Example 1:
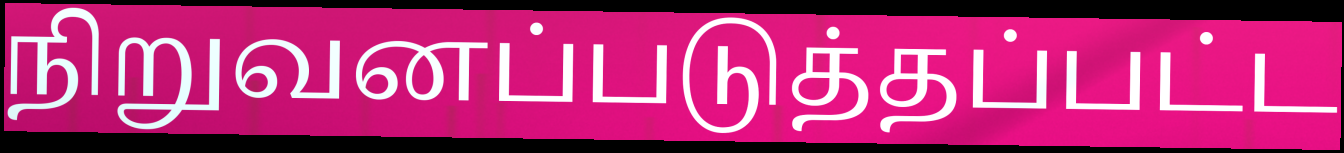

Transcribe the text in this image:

நிறுவனப்படுத்தப்பட்ட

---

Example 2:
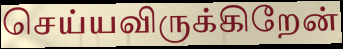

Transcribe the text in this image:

செய்யவிருக்கிறேன்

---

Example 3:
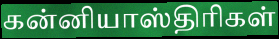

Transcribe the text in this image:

கன்னியாஸ்திரிகள்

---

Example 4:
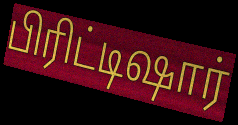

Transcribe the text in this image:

பிரிட்டிஷார்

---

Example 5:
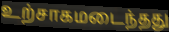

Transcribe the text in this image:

உற்சாகமடைந்தது